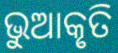
ଭୁଆକୃତି